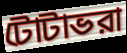
টোটাভরা